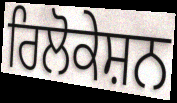
ਰਿਲੋਕੇਸ਼ਨ